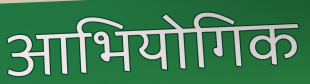
आभियोगिक